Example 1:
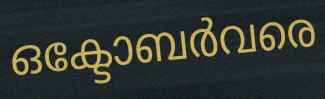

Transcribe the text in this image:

ഒക്ടോബർവരെ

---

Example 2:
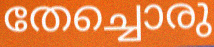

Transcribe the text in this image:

തേച്ചൊരു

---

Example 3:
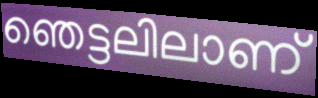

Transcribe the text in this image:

ഞെട്ടലിലാണ്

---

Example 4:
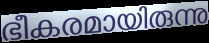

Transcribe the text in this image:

ഭീകരമായിരുന്നു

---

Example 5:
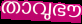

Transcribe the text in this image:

താവുഭൗ